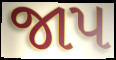
જાપ